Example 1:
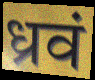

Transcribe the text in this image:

ध्रवं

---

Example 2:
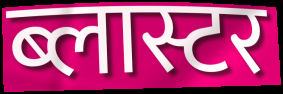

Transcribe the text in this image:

ब्लास्टर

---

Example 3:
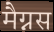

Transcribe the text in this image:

मैग्नस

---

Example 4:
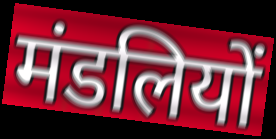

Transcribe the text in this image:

मंडलियों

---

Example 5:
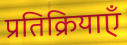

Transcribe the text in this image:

प्रतिक्रियाएँ